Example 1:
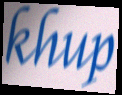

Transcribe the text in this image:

khup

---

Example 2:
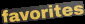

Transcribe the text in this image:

favorites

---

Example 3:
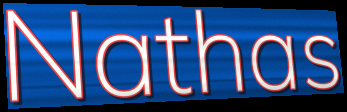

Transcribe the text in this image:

Nathas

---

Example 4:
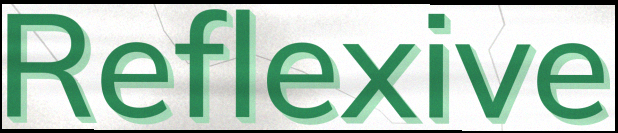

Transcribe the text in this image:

Reflexive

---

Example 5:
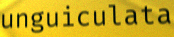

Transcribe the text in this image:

unguiculata